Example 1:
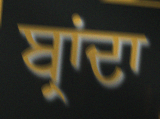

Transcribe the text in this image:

ਬ੍ਰਾਂਦਾ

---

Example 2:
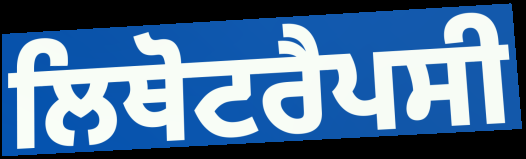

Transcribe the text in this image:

ਲਿਥੋਟਰੈਪਸੀ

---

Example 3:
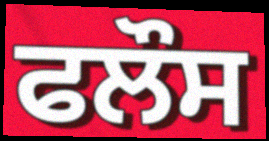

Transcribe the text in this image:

ਫਲੌਸ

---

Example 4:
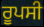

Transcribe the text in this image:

ਰੂਪਸੀ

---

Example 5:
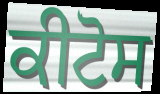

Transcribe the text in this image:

ਕੀਟੋਸ